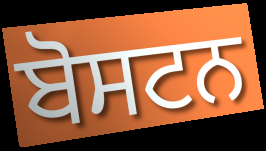
ਬੋਸਟਨ